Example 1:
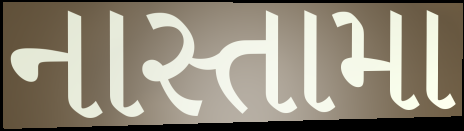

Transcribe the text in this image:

નાસ્તામા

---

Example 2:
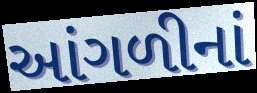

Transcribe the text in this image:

આંગળીનાં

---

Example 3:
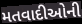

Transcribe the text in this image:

મતવાદીઓની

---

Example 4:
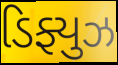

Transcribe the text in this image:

ડિફ્યુઝ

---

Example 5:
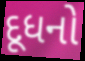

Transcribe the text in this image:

દૂધનો